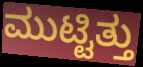
ಮುಟ್ಟಿತ್ತು